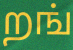
றங்